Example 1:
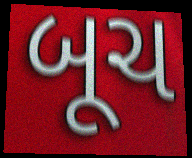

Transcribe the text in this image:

બૂચ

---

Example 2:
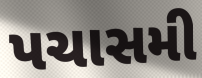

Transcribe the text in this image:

પચાસમી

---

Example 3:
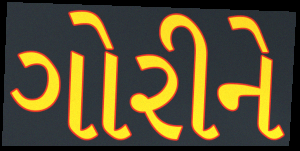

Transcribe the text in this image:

ગોરીને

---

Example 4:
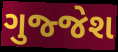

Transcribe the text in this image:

ગુજ્જેશ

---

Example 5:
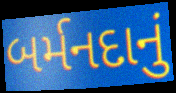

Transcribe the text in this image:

બર્મનદાનું